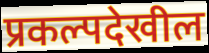
प्रकल्पदेखील